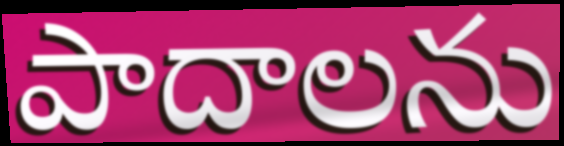
పాదాలను